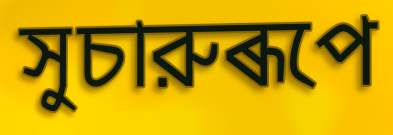
সুচাৰুৰূপে